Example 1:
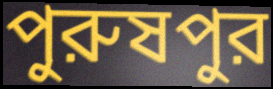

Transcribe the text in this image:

পুরুষপুর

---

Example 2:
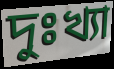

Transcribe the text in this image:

দুঃখ্যা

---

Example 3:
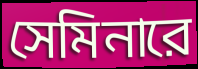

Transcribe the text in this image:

সেমিনারে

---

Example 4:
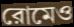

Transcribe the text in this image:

রোমেও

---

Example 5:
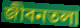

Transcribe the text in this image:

জীবনতলা